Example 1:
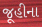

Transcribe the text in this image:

જૂહીના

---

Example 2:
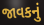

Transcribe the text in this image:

જાવકનું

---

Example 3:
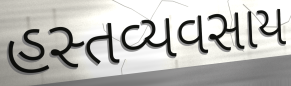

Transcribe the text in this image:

હસ્તવ્યવસાય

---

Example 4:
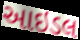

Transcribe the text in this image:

આઇડલ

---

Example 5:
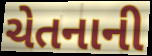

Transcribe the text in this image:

ચેતનાની